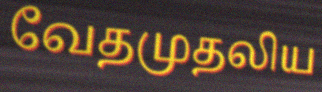
வேதமுதலிய